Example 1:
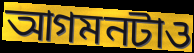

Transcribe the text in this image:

আগমনটাও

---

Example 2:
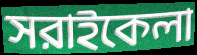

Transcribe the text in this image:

সরাইকেলা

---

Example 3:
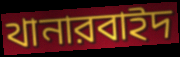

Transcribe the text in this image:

থানারবাইদ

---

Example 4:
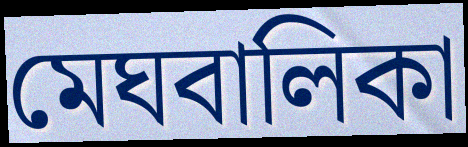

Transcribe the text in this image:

মেঘবালিকা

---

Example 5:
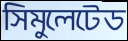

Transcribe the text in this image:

সিমুলেটেড